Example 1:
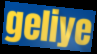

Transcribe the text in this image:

geliye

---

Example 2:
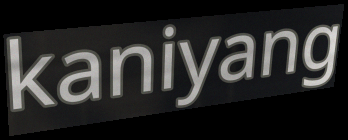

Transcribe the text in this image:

kaniyang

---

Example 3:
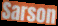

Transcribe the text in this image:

Sarson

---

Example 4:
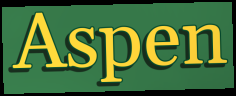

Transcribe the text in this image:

Aspen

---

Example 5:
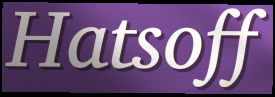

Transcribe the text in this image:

Hatsoff